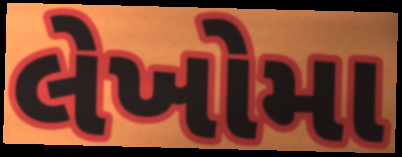
લેખોમા